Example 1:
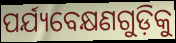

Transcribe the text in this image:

ପର୍ଯ୍ୟବେକ୍ଷଣଗୁଡ଼ିକୁ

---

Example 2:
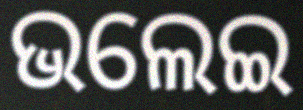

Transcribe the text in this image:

ଭଲେଇ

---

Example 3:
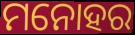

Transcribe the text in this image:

ମନୋହର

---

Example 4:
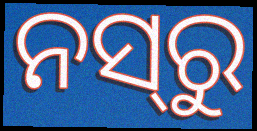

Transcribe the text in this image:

ନସ୍‍ରୁ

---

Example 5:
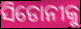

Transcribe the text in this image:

ସିଡୋନୀକୁ